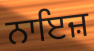
ਨਾਇਜ਼